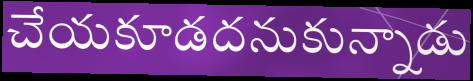
చేయకూడదనుకున్నాడు